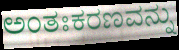
ಅಂತಃಕರಣವನ್ನು